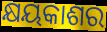
କ୍ଷୟକାଶର